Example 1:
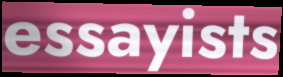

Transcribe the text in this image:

essayists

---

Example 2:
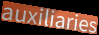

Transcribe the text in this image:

auxiliaries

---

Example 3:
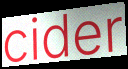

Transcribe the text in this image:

cider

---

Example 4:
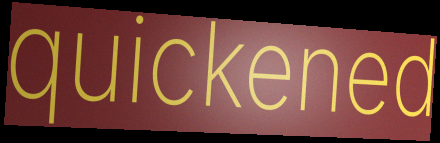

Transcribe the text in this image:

quickened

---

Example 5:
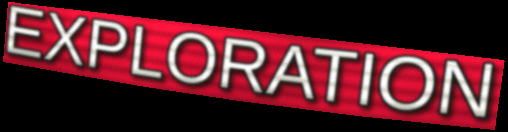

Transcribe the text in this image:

EXPLORATION